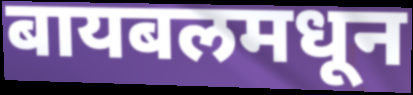
बायबलमधून